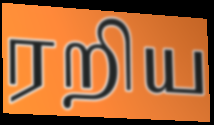
ரறிய